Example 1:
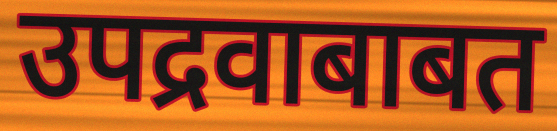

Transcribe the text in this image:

उपद्रवाबाबत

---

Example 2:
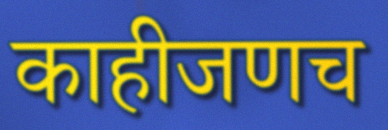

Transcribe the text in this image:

काहीजणच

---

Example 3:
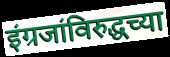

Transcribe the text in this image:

इंग्रजांविरुद्धच्या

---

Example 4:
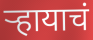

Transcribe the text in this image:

ऱ्हायाचं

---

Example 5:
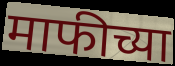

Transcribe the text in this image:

माफीच्या